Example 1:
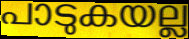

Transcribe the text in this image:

പാടുകയല്ല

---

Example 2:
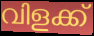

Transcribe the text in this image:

വിളക്ക്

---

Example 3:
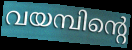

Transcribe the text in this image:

വയമ്പിന്റെ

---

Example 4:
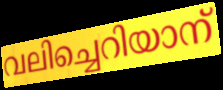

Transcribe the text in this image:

വലിച്ചെറിയാന്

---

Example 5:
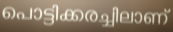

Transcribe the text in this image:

പൊട്ടിക്കരച്ചിലാണ്